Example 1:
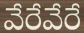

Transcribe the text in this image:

వేరేవేరే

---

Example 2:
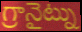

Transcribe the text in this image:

గ్రానైట్ను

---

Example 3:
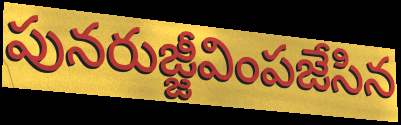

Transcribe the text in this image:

పునరుజ్జీవింపజేసిన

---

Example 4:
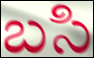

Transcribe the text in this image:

బసి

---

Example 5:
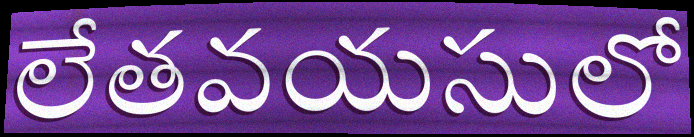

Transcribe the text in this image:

లేతవయసులో